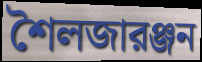
শৈলজারঞ্জন